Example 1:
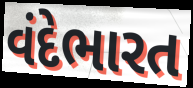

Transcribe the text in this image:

વંદેભારત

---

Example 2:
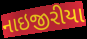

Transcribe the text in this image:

નાઇજીરીયા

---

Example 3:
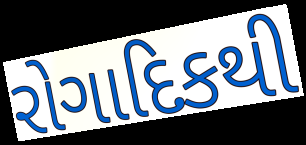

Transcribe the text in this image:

રોગાદિકથી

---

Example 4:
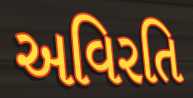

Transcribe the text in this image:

અવિરતિ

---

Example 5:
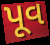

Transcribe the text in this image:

પૂવ